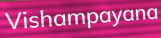
Vishampayana